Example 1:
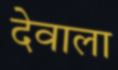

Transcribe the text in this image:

देवाला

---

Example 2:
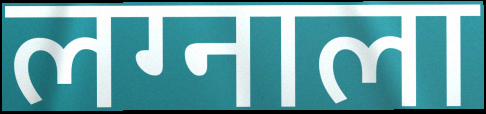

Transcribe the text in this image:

लग्नाला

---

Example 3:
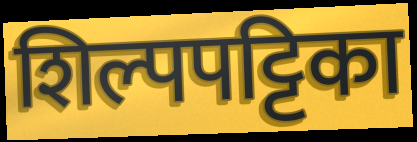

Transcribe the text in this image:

शिल्पपट्टिका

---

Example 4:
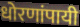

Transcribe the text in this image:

धोरणांपायी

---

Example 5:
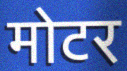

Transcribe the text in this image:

मोटर